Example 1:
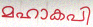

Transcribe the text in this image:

മഹാകപി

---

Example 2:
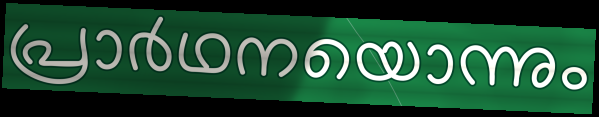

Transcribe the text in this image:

പ്രാർഥനയൊന്നും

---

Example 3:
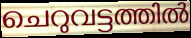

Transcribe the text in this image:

ചെറുവട്ടത്തിൽ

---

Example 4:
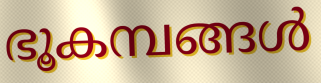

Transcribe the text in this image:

ഭൂകമ്പങ്ങൾ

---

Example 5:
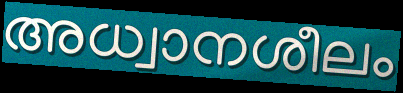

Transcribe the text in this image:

അധ്വാനശീലം